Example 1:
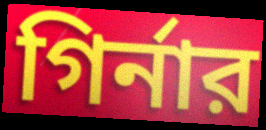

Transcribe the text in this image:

গির্নার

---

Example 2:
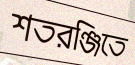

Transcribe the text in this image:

শতরঞ্জিতে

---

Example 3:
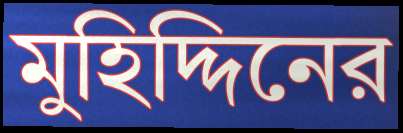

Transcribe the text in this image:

মুহিদ্দিনের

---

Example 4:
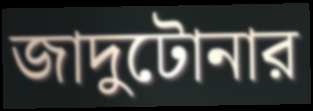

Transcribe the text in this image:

জাদুটোনার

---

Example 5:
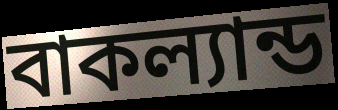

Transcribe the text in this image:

বাকল্যান্ড